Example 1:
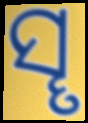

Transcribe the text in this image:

ସୄ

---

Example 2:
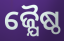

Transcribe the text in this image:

ଜ୍ଯୈଷ୍ଠ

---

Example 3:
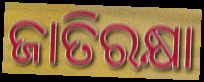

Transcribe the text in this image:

ଜାତିରକ୍ଷା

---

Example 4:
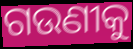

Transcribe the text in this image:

ଗଉଣୀକୁ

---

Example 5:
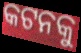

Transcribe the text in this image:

କଟନକୁ